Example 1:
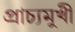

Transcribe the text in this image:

প্রাচ্যমুখী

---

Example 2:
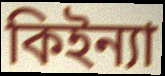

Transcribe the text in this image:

কিইন্যা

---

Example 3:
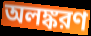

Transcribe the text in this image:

অলঙ্করণ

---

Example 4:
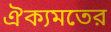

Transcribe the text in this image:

ঐক্যমতের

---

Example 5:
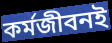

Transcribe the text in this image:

কর্মজীবনই